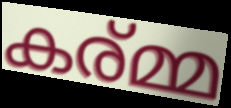
കര്മ്മ